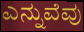
ಎನ್ನುವೆವು